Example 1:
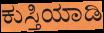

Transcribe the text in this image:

ಕುಸ್ತಿಯಾಡಿ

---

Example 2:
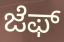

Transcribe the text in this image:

ಜೆಫ್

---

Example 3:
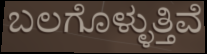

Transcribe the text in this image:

ಬಲಗೊಳ್ಳುತ್ತಿವೆ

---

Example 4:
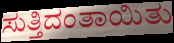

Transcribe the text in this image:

ಸುತ್ತಿದಂತಾಯಿತು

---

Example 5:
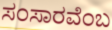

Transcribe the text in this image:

ಸಂಸಾರವೆಂಬ